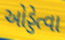
ઓડ્ડેત્વા